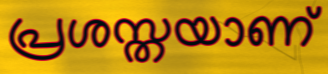
പ്രശസ്തയാണ്